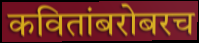
कवितांबरोबरच